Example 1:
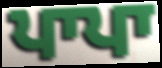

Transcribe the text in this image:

ਪਾਪਾ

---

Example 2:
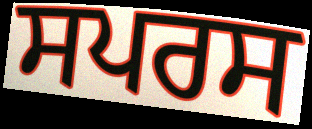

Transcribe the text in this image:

ਸਪਰਸ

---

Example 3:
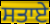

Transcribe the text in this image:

ਸਤਾਏ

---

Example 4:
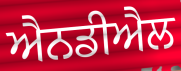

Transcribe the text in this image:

ਐਨਡੀਐਲ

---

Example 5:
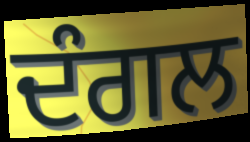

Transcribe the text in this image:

ਦੰਗਲ